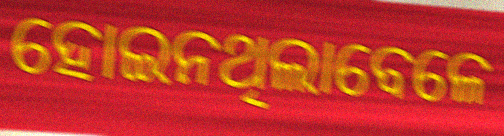
ହୋଇନଥିଲାବେଳେ